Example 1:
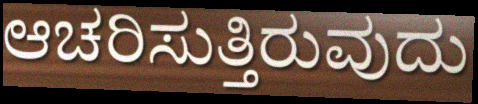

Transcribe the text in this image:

ಆಚರಿಸುತ್ತಿರುವುದು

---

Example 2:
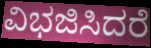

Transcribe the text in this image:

ವಿಭಜಿಸಿದರೆ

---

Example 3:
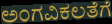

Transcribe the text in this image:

ಅಂಗವಿಕಲತೆಗೆ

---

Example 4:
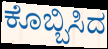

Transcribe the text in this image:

ಕೊಬ್ಬಿಸಿದ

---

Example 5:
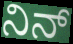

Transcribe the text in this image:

ನಿನ್